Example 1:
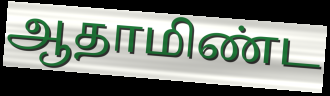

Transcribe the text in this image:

ஆதாமிண்ட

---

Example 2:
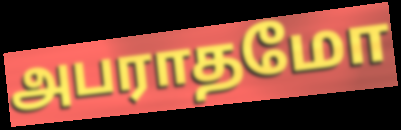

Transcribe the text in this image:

அபராதமோ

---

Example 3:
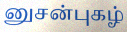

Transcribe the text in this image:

னுசன்புகழ்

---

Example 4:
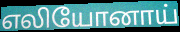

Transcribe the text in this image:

எலியோனாய்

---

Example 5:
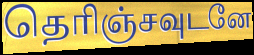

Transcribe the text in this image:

தெரிஞ்சவுடனே